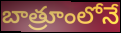
బాత్రూంలోనే